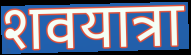
शवयात्रा